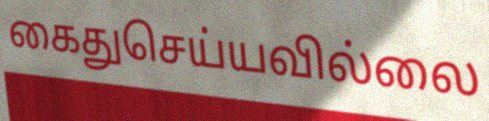
கைதுசெய்யவில்லை